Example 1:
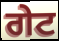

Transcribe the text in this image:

ਗੇਟ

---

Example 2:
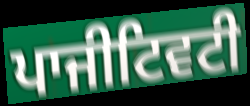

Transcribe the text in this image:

ਪਾਜੀਟਿਵਟੀ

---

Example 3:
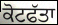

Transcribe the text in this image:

ਕੋਟਫੱਤਾ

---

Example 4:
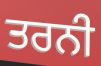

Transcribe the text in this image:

ਤਰਨੀ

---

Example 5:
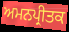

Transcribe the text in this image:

ਅਮਨਪ੍ਰੀਤਕ